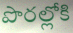
పొరల్లోకి